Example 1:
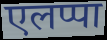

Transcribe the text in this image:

एलप्पा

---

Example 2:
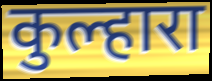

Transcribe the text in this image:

कुल्हारा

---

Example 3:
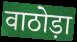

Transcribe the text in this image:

वाठोड़ा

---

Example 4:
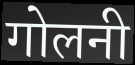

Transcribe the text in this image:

गोलनी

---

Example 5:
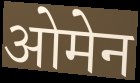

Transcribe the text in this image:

ओमेन